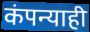
कंपन्याही